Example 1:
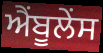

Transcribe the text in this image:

ਐਂਬੂਲੇਂਸ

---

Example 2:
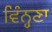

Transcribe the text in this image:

ਵਿੰਨ੍ਹਣਾ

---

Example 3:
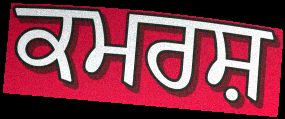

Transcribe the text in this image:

ਕਮਰਸ਼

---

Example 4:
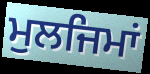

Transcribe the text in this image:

ਮੁਲਜਿਮਾਂ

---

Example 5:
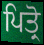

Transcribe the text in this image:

ਪਿਤ੍ਰੋ